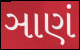
ઞાણં